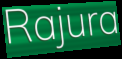
Rajura